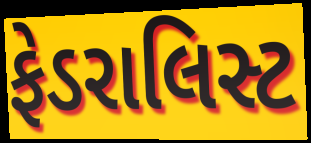
ફેડરાલિસ્ટ